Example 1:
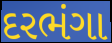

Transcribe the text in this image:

દરભંગા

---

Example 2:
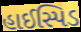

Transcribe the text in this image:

હાઈસ્પિડ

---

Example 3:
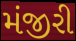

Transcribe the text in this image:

મંજીરી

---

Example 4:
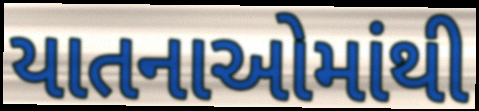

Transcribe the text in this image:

યાતનાઓમાંથી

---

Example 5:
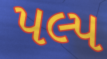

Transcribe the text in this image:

પલ્પ